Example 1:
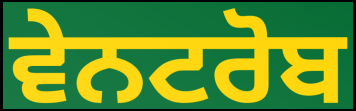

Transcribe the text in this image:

ਵੇਨਟਰੋਬ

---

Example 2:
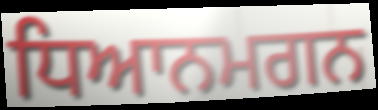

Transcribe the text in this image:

ਧਿਆਨਮਗਨ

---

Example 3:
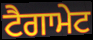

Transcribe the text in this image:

ਟੈਗਾਮੇਟ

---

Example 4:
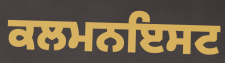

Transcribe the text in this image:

ਕਲਮਨਇਸਟ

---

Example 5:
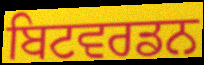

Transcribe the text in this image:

ਬਿਟਵਰਡਨ